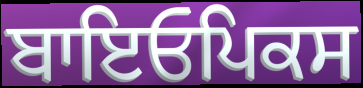
ਬਾਇਓਪਿਕਸ